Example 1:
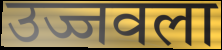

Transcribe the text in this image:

उज्‍जवला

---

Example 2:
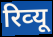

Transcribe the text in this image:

रिव्‍यू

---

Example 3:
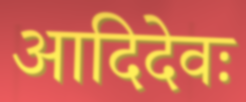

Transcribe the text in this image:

आदिदेवः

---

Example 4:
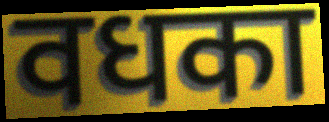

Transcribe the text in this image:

वधका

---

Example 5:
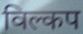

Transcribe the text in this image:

विल्कप